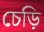
চেড়ি